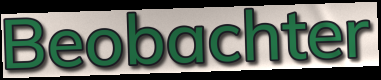
Beobachter